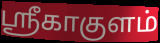
ஸ்ரீகாகுளம்